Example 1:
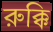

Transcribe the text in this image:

রুক্কি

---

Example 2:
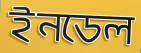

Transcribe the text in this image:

ইনডেল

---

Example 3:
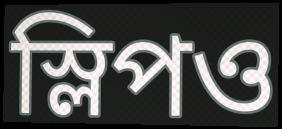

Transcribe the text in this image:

স্লিপও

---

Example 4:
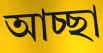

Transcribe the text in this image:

আচ্ছা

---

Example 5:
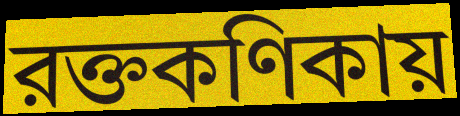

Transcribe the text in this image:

রক্তকণিকায়